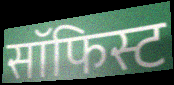
सॉफिस्ट